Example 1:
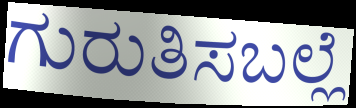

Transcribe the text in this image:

ಗುರುತಿಸಬಲ್ಲೆ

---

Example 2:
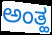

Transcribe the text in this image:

ಅಂತ್ಹ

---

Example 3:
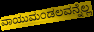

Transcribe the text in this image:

ವಾಯುಮಂಡಲವನ್ನೆಲ್ಲ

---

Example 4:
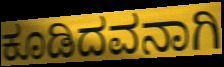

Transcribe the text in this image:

ಕೂಡಿದವನಾಗಿ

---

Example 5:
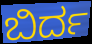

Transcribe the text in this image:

ಬಿರ್ದ